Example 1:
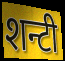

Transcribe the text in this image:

शन्टी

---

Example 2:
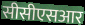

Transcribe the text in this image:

सीसीएसआर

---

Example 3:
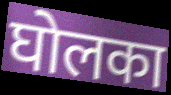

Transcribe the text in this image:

घोलका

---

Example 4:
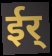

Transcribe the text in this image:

ईर्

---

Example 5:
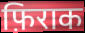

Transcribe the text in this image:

फ़िराक